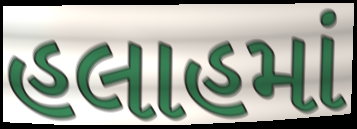
હલાહમાં